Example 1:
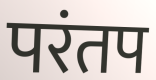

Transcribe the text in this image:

परंतप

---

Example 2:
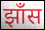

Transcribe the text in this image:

झाँस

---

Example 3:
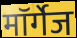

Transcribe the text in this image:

मॉर्गेज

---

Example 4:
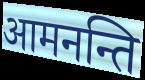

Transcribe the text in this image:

आमनन्ति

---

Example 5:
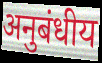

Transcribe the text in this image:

अनुबंधीय